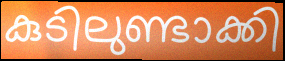
കുടിലുണ്ടാക്കി